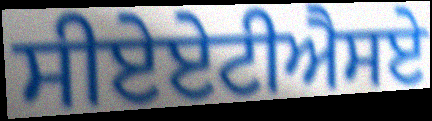
ਸੀਏਏਟੀਐਸਏ